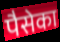
पैसेका